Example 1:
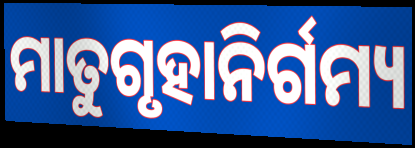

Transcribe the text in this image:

ମାତୁଗୃହାନିର୍ଗମ୍ୟ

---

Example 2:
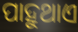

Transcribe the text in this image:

ପାହୁଥାଏ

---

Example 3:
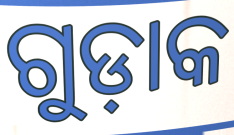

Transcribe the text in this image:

ଗୁଡ଼ାକ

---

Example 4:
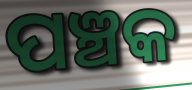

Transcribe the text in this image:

ପଞ୍ଚକ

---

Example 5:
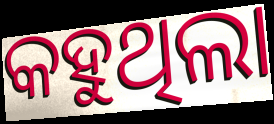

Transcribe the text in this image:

କହୁଥିଲା